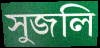
সুজলি